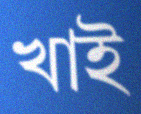
খাই